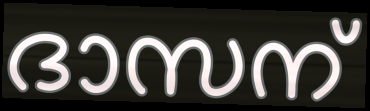
ദാസന്